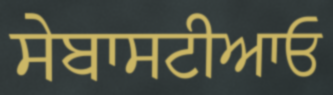
ਸੇਬਾਸਟੀਆਓ